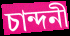
চান্দনী